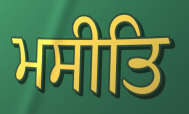
ਮਸੀਤਿ